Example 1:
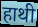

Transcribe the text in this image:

हाथी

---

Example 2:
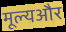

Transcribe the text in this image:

मूल्यऔर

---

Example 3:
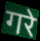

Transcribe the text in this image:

गरे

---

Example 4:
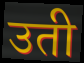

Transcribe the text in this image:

उती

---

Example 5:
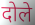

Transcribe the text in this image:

दोले